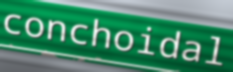
conchoidal